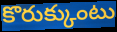
కొరుక్కుంటు